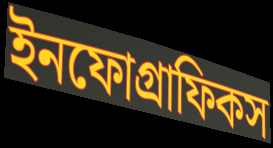
ইনফোগ্রাফিকস